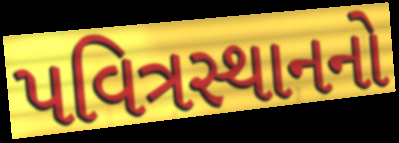
પવિત્રસ્થાનનો